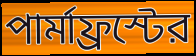
পার্মাফ্রস্টের